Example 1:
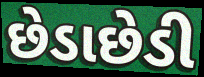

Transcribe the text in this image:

છેડાછેડી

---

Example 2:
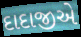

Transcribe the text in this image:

દાદાજીએ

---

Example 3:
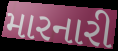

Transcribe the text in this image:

મારનારી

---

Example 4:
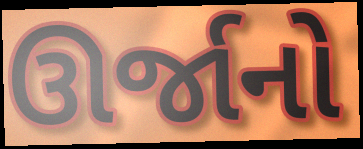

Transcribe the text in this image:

ઊર્જાનો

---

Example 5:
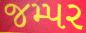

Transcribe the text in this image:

જમ્પર